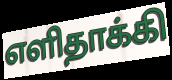
எளிதாக்கி